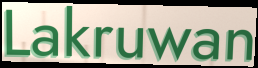
Lakruwan